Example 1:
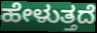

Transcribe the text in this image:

ಹೇಳುತ್ತದೆ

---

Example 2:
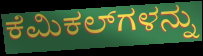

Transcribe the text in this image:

ಕೆಮಿಕಲ್‌ಗಳನ್ನು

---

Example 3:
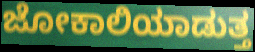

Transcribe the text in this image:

ಜೋಕಾಲಿಯಾಡುತ್ತ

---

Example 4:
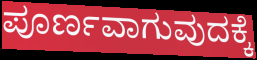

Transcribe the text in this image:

ಪೂರ್ಣವಾಗುವುದಕ್ಕೆ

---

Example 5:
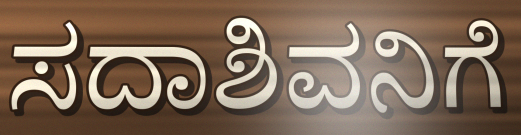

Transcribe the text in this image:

ಸದಾಶಿವನಿಗೆ